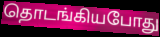
தொடங்கியபோது